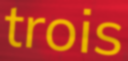
trois